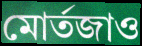
মোর্তজাও